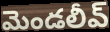
మెండలీవ్